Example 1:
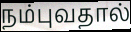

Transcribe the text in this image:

நம்புவதால்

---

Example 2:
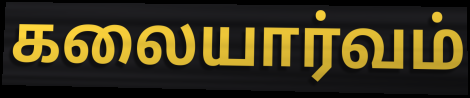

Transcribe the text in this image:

கலையார்வம்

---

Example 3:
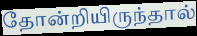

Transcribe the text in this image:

தோன்றியிருந்தால்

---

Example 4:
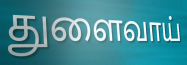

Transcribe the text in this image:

துளைவாய்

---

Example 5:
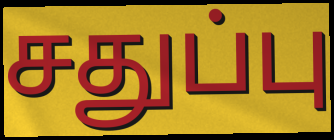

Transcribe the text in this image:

சதுப்பு